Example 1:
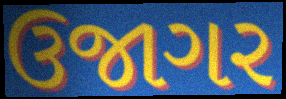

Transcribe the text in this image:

ઉજાગર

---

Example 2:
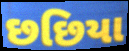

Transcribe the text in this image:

છછિયા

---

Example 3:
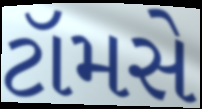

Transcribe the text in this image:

ટૉમસે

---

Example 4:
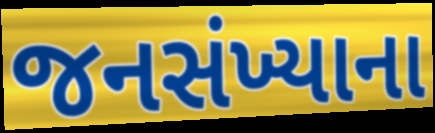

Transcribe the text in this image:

જનસંખ્યાના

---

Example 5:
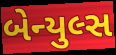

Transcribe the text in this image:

બેન્યુલ્સ